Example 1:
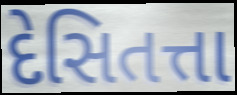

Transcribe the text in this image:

દેસિતત્તા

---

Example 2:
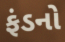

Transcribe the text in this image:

ફંડનો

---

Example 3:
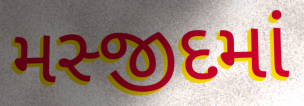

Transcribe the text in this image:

મસ્જીદમાં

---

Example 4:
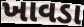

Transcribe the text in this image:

ખાવડા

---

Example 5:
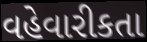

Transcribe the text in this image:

વહેવારીકતા